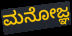
ಮನೋಜ್ಞ